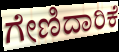
ಗೇಣಿದಾರಿಕೆ